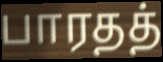
பாரதத்